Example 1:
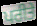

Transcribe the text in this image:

ਪਰੀਤੇ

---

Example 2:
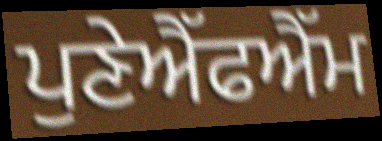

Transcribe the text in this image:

ਪੁਣੇਐੱਫਐੱਮ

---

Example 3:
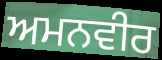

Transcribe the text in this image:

ਅਮਨਵੀਰ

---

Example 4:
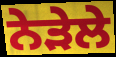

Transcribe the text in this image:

ਨੇੜੇਲੇ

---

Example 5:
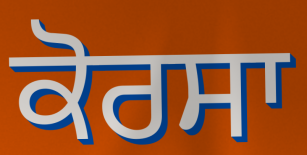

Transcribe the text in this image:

ਕੋਰਸਾ